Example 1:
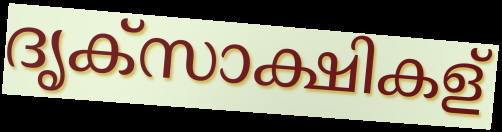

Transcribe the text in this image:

ദൃക്സാക്ഷികള്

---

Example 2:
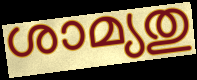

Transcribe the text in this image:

ശാമ്യതു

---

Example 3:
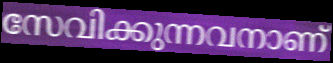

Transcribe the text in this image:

സേവിക്കുന്നവനാണ്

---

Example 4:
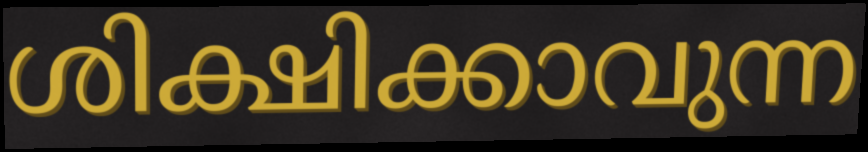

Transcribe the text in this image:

ശിക്ഷിക്കാവുന്ന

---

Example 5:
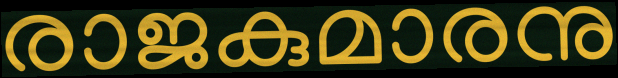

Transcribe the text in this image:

രാജകുമാരനു